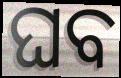
ଘବ